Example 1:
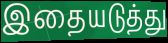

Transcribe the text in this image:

இதையடுத்து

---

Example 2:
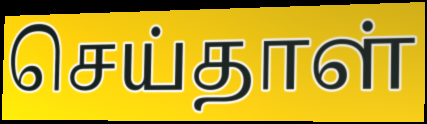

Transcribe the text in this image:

செய்தாள்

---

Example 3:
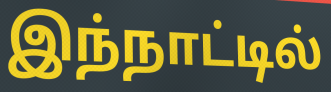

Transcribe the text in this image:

இந்நாட்டில்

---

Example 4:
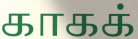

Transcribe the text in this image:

காகக்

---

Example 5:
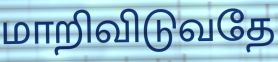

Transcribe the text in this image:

மாறிவிடுவதே